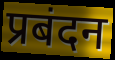
प्रबंदन